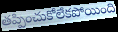
తప్పించుకోలేకపోయింది